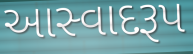
આસ્વાદરૂપ